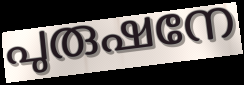
പുരുഷനേ